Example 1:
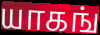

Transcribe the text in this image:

யாகங்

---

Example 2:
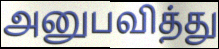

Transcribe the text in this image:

அனுபவித்து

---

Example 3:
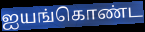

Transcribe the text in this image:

ஐயங்கொண்ட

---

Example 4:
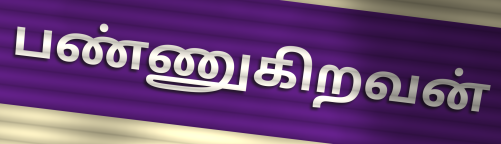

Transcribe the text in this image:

பண்ணுகிறவன்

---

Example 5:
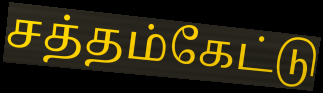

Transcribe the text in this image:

சத்தம்கேட்டு